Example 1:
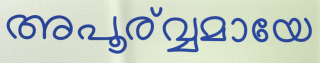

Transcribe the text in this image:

അപൂര്വ്വമായേ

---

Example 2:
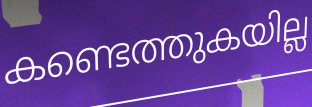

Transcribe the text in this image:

കണ്ടെത്തുകയില്ല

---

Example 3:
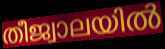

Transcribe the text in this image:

തീജ്വാലയിൽ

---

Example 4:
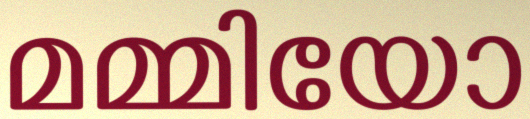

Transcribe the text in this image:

മമ്മിയോ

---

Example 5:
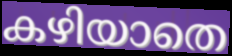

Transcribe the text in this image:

കഴിയാതെ